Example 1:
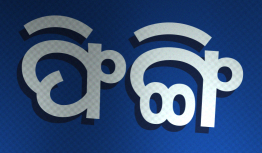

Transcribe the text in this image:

ଫିଙ୍ଗି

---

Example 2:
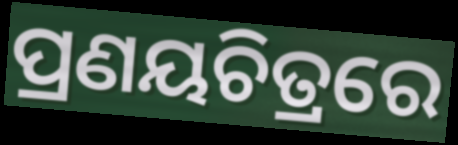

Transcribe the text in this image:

ପ୍ରଣୟଚିତ୍ରରେ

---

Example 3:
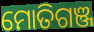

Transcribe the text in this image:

ମୋତିଗଞ୍ଜ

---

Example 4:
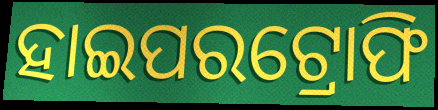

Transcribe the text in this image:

ହାଇପରଟ୍ରୋଫି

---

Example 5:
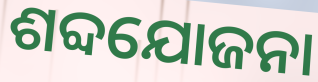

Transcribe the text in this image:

ଶବ୍ଦଯୋଜନା